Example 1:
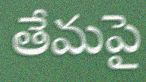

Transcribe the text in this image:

తేమపై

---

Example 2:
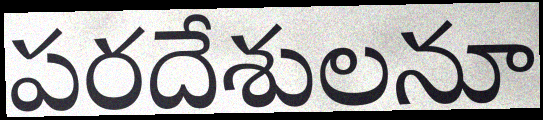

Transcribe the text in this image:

పరదేశులనూ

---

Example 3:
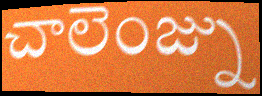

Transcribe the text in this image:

చాలెంజ్ను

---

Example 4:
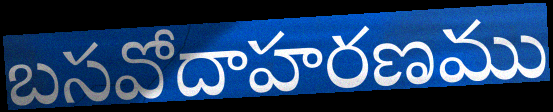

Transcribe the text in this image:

బసవోదాహరణము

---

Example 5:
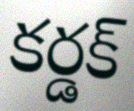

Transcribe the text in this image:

కర్డక్